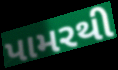
પામરથી